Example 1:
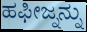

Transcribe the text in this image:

ಹಫೀಜ್ನನ್ನು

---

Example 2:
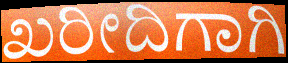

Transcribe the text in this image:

ಖರೀದಿಗಾಗಿ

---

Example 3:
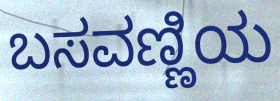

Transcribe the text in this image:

ಬಸವಣ್ಣಿಯ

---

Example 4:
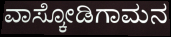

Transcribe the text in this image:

ವಾಸ್ಕೋಡಿಗಾಮನ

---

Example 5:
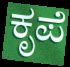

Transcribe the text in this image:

ಕೃಪೆ